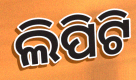
ଲିପିଟି